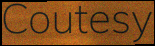
Coutesy